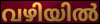
വഴിയിൽ